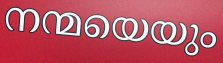
നന്മയെയും